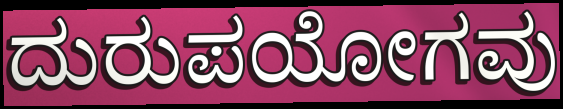
ದುರುಪಯೋಗವು